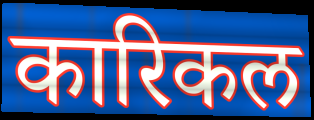
कारिकल